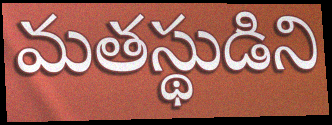
మతస్థుడిని